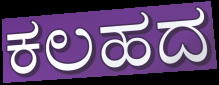
ಕಲಹದ